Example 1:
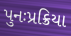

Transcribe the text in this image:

પુનઃપ્રક્રિયા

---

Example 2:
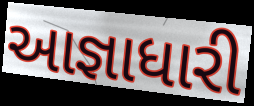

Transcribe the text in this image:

આજ્ઞાધારી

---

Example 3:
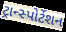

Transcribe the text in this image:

ટ્રાન્સ્પોર્ટેશન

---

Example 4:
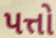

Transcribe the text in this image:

પત્તો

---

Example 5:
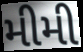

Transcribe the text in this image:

મીમી